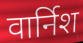
वार्निश